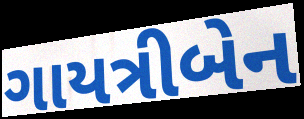
ગાયત્રીબેન